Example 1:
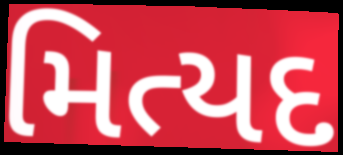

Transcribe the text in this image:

મિત્યદ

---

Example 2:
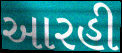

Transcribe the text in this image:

આરહી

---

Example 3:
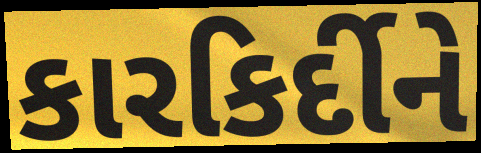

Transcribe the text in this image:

કારકિર્દીને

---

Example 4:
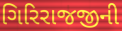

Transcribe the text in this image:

ગિરિરાજજીની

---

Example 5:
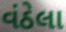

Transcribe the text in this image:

વંઠેલા